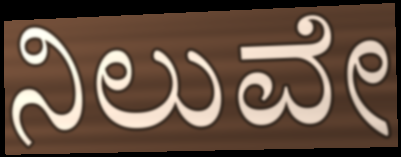
ನಿಲುವೇ